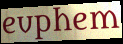
euphem